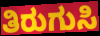
ತಿರುಗುಸಿ